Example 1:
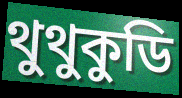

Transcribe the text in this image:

থুথুকুডি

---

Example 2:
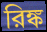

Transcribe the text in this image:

রিঙ্ক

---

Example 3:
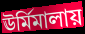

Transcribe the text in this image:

ঊর্মিমালায়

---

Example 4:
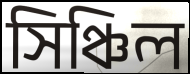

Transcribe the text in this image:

সিঞ্চিল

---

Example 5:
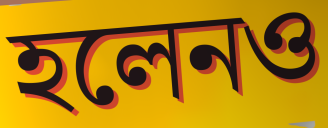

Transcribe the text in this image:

হলেনও